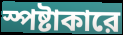
স্পষ্টাকারে